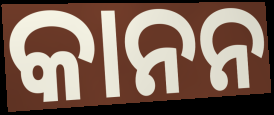
କାନନ